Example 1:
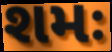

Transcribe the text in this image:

શમઃ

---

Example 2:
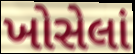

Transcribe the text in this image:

ખોસેલાં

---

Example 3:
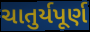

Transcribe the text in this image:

ચાતુર્યપૂર્ણ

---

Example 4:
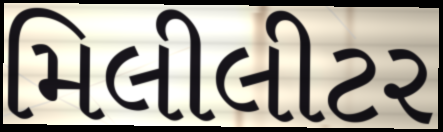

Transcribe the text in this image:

મિલીલીટર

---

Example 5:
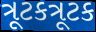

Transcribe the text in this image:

ત્રૂટકત્રૂટક